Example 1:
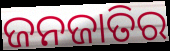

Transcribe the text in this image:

ଜନଜାତିର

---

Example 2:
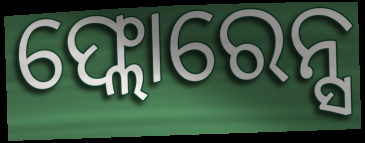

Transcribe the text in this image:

ଫ୍ଲୋରେନ୍ସ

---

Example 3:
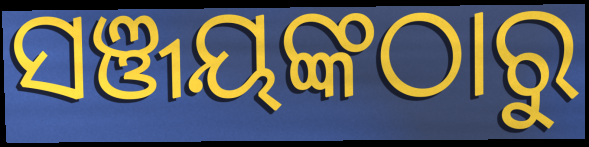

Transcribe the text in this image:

ସଞ୍ଜୟଙ୍କଠାରୁ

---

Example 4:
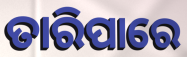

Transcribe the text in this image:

ତାରିପାରେ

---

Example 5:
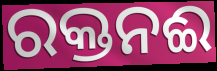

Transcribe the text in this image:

ରକ୍ତନଈ